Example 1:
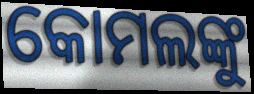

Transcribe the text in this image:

କୋମଲଙ୍କୁ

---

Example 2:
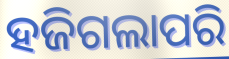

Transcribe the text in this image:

ହଜିଗଲାପରି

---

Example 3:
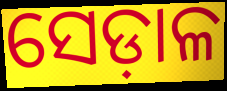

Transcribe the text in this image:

ସେଡ଼ାଳ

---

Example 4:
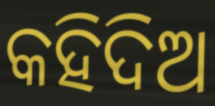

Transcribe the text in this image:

କହିଦିଅ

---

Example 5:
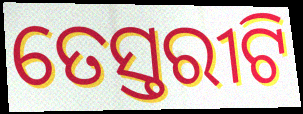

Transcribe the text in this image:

ତେସ୍ତରୀଟି